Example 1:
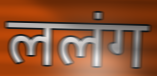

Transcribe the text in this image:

ललंग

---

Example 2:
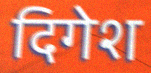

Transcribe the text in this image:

दिगेश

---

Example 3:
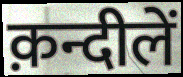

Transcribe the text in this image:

क़न्दीलें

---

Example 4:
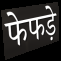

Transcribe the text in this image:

फेफड़े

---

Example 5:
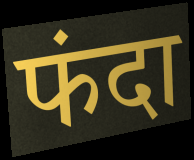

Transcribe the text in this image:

फंदा